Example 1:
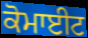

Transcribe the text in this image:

ਕੋਮਾਈਟ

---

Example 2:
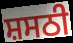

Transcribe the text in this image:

ਸ਼ਸਠੀ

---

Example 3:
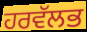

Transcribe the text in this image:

ਹਰਵੱਲਭ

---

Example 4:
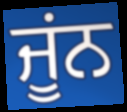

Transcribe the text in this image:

ਜੂਂਨ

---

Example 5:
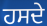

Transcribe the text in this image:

ਹਸਦੇ